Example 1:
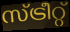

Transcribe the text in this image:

സ്ട്രീറ്റ്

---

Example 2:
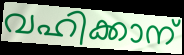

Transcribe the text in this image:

വഹിക്കാന്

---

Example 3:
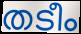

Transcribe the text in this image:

തടീം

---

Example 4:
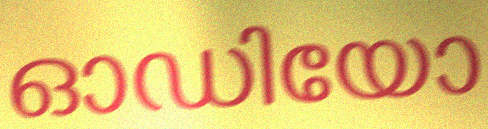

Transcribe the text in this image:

ഓഡിയോ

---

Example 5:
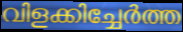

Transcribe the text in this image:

വിളക്കിച്ചേർത്ത